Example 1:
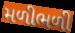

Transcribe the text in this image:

મળીભળી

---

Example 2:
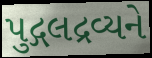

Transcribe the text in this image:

પુદ્ગલદ્રવ્યને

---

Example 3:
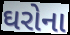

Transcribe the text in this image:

ઘરોના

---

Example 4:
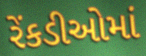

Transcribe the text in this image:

રેંકડીઓમાં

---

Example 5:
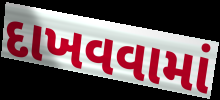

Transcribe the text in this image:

દાખવવામાં